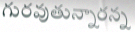
గురవుతున్నారన్న